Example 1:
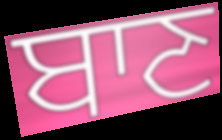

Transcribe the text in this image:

ਬਾਣ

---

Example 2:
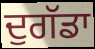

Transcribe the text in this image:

ਦੁਗੱਡਾ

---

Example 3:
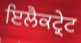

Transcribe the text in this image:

ਇਲੈਕਟ੍ਰੇਟ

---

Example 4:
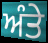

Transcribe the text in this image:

ਅੰਤੇ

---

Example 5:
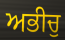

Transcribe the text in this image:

ਅਭੀਚੁ